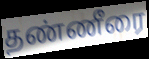
தண்ணீரை